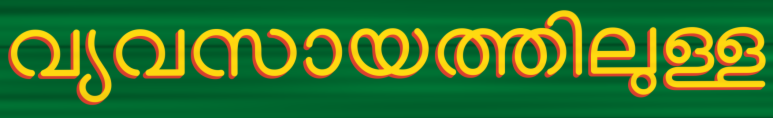
വ്യവസായത്തിലുള്ള